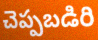
చెప్పబడిరి